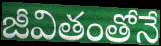
జీవితంతోనే